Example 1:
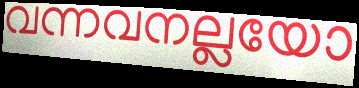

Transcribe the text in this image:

വന്നവനല്ലയോ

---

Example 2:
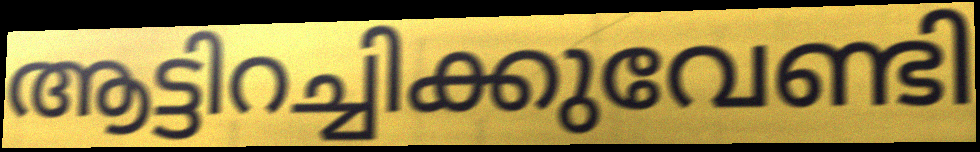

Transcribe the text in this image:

ആട്ടിറച്ചിക്കുവേണ്ടി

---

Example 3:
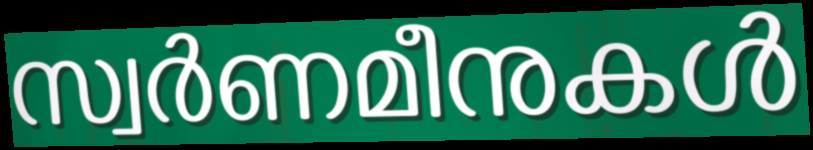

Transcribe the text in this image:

സ്വർണമീനുകൾ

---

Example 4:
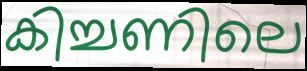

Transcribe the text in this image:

കിച്ചണിലെ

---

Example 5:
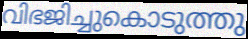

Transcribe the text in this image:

വിഭജിച്ചുകൊടുത്തു